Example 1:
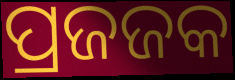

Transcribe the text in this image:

ପ୍ରଜଜକ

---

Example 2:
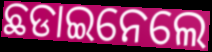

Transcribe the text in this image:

ଛଡାଇନେଲେ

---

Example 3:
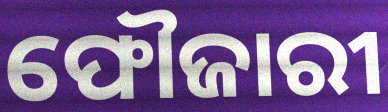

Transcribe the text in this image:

ଫୌଜାରୀ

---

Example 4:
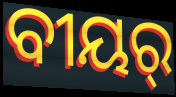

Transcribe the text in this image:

ବୀୟର୍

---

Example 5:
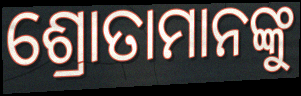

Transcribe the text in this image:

ଶ୍ରୋତାମାନଙ୍କୁ